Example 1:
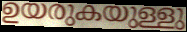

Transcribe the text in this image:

ഉയരുകയുള്ളു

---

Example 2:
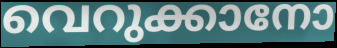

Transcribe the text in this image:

വെറുക്കാനോ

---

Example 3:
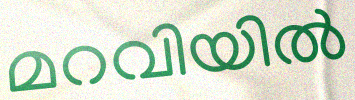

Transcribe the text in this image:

മറവിയിൽ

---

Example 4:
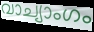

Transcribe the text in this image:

വാച്യാംഗം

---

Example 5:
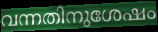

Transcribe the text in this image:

വന്നതിനുശേഷം